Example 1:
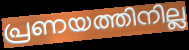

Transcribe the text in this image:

പ്രണയത്തിനില്ല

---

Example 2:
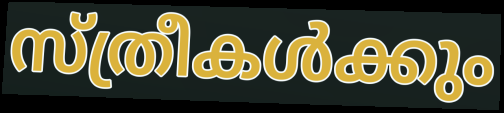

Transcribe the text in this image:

സ്ത്രീകൾക്കും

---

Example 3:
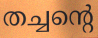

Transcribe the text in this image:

തച്ചന്റെ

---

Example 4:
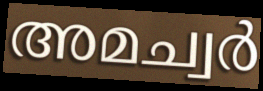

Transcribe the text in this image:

അമച്വർ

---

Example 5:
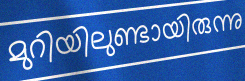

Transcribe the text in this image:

മുറിയിലുണ്ടായിരുന്നു